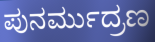
ಪುನರ್ಮುದ್ರಣ